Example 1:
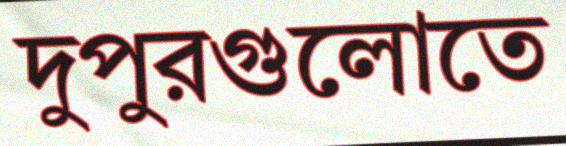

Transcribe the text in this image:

দুপুরগুলোতে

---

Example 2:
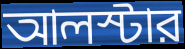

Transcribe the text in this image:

আলস্টার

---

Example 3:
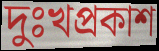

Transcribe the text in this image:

দুঃখপ্রকাশ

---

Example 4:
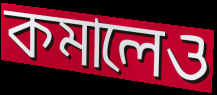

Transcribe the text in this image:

কমালেও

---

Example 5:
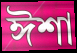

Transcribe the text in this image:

ঈশা